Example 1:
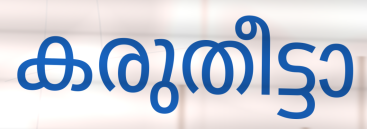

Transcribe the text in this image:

കരുതീട്ടാ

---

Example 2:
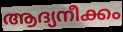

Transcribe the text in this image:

ആദ്യനീക്കം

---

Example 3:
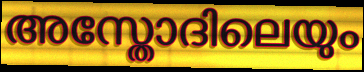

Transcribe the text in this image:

അസ്തോദിലെയും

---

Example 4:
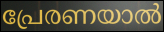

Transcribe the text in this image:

പ്രേരണയാൽ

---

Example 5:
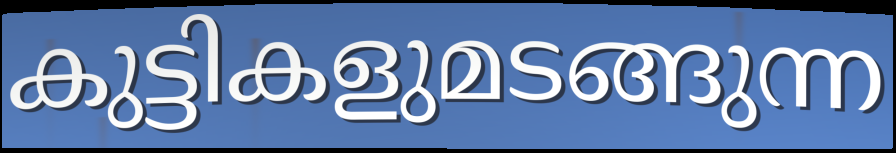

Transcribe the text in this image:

കുട്ടികളുമടങ്ങുന്ന